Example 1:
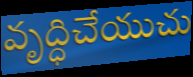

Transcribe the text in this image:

వృద్ధిచేయుచు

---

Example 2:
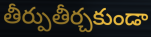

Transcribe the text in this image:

తీర్పుతీర్చకుండా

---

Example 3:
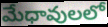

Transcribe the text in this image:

మేధావులలో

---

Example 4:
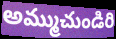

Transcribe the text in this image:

అమ్ముచుండిరి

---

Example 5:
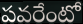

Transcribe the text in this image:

పవరేంటో